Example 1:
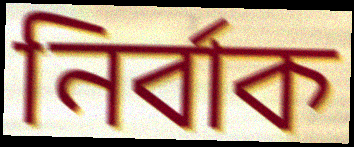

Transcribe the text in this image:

নিৰ্বাক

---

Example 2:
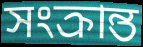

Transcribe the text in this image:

সংক্ৰান্ত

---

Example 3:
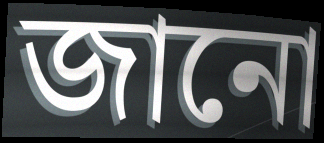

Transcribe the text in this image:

জানো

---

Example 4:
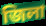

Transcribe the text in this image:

জিলা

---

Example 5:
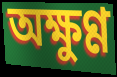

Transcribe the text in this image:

অক্ষুণ্ণ